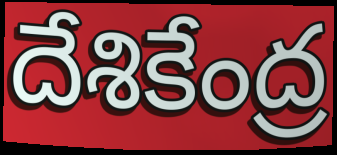
దేశికేంద్ర